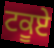
ਟਕੂਏ